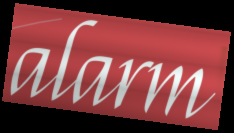
alarm